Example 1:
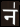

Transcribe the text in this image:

न॑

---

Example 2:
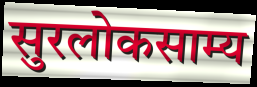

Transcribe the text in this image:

सुरलोकसाम्य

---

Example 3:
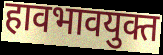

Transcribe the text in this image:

हावभावयुक्त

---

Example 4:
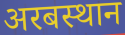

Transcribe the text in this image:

अरबस्थान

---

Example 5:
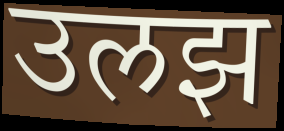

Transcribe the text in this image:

उलझ